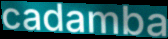
cadamba